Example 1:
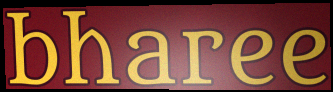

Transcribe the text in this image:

bharee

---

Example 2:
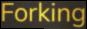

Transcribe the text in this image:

Forking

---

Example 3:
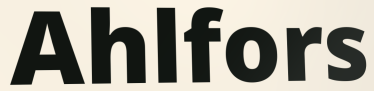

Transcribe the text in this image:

Ahlfors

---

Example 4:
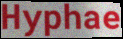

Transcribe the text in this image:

Hyphae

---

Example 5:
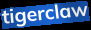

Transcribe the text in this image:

tigerclaw